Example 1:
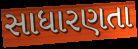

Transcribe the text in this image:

સાધારણતા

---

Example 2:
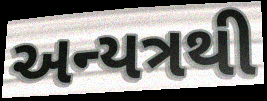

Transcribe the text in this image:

અન્યત્રથી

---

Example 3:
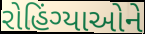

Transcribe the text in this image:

રોહિંગ્યાઓને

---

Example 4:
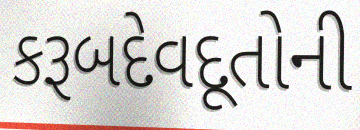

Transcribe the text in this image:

કરૂબદેવદૂતોની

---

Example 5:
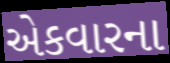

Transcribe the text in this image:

એકવારના